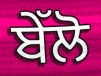
ਬੇੱਲੋ